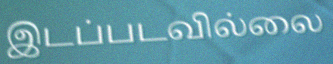
இடப்படவில்லை